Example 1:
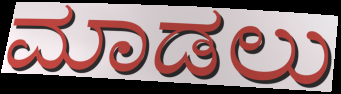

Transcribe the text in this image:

ಮಾಡಲು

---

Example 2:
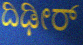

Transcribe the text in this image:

ದಿಢೀರ್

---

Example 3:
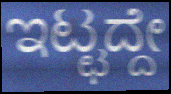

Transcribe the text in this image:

ಇಟ್ಟದ್ದೇ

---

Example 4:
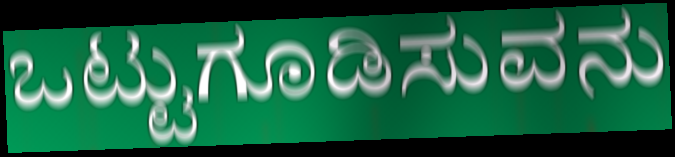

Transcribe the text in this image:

ಒಟ್ಟುಗೂಡಿಸುವನು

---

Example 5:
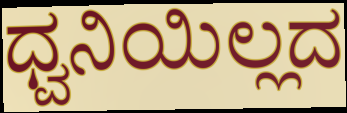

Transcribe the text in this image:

ಧ್ವನಿಯಿಲ್ಲದ